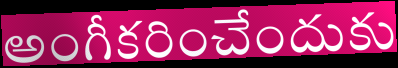
అంగీకరించేందుకు